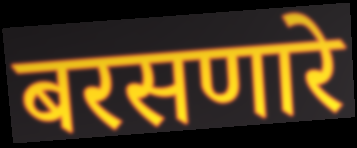
बरसणारे